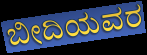
ಬೀದಿಯವರ